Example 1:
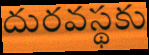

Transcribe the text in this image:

దురవస్థకు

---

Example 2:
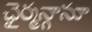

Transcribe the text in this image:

ఛైర్మన్గానూ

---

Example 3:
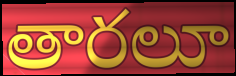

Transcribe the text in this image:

తారలూ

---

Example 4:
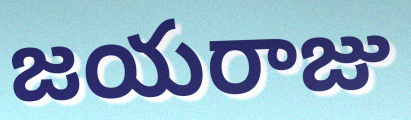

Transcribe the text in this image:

జయరాజు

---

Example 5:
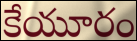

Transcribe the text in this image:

కేయూరం